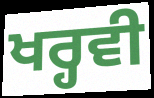
ਖਰ੍ਹਵੀ